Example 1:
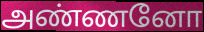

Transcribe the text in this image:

அண்ணனோ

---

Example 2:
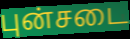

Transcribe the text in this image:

புன்சடை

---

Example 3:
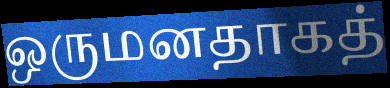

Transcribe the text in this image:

ஒருமனதாகத்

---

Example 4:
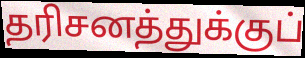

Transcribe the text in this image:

தரிசனத்துக்குப்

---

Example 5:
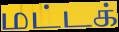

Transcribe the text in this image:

மட்டக்